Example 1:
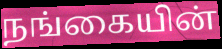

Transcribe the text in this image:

நங்கையின்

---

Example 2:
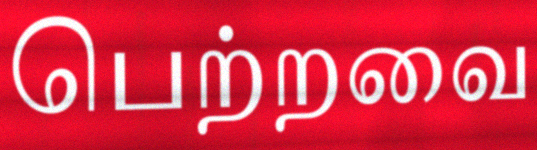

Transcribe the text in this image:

பெற்றவை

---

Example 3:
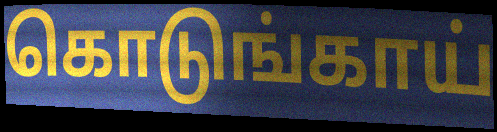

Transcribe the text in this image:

கொடுங்காய்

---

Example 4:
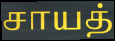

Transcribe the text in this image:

சாயத்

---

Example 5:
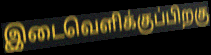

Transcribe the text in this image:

இடைவெளிக்குப்பிறகு